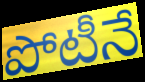
పోటీనే